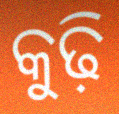
କୁଢ଼ି